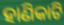
ହାଣିକାଟି